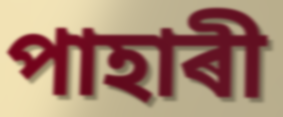
পাহাৰী